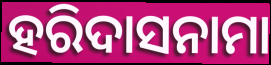
ହରିଦାସନାମା